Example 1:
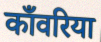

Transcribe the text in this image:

काँवरिया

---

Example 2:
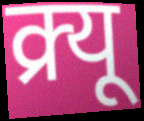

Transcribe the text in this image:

क्र्यू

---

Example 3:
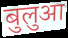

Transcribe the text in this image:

बुलुआ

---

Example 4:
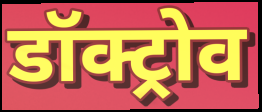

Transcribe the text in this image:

डॉक्ट्रोव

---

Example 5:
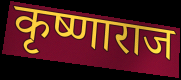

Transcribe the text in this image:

कृष्णाराज